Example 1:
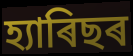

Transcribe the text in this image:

হ্যাৰিছৰ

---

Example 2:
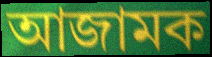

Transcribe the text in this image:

আজামক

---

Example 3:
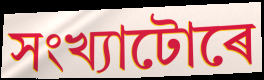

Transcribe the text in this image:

সংখ্যাটোৰে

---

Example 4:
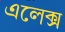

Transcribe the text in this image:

এলেক্স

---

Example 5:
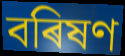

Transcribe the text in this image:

বৰিষণ